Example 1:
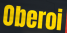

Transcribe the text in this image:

Oberoi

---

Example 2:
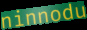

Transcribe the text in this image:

ninnodu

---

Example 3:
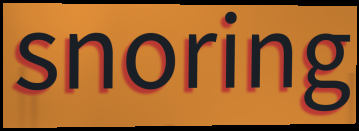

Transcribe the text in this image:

snoring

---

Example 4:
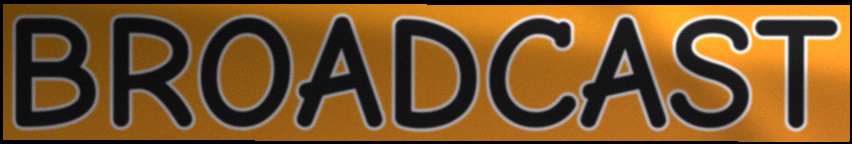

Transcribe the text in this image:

BROADCAST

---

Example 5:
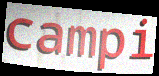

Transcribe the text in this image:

campi